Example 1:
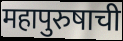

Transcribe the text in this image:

महापुरुषाची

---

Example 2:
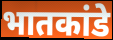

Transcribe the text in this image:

भातकांडे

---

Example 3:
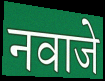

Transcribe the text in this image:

नवाजे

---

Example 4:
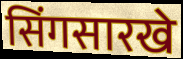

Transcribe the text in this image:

सिंगसारखे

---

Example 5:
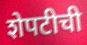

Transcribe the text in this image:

शेपटीची